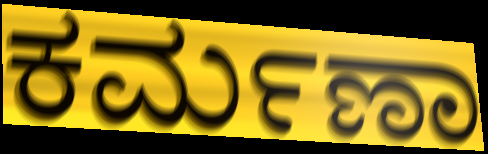
ಕರ್ಮಣಾ